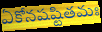
ఏకోనషష్టితమః